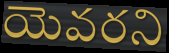
యెవరని